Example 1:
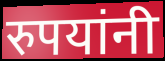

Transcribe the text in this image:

रुपयांनी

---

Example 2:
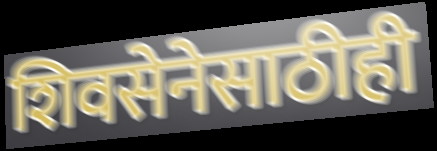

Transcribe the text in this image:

शिवसेनेसाठीही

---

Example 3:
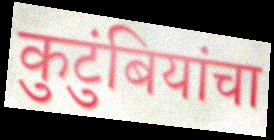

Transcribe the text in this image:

कुटुंबियांचा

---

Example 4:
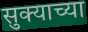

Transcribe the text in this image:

सुक्‍याच्या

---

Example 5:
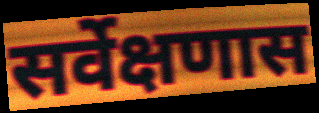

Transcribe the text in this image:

सर्वेक्षणास